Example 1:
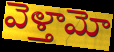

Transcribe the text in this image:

వెళ్తామో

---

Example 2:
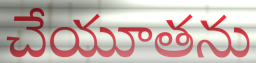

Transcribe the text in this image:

చేయూతను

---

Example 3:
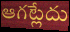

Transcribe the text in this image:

ఆగట్లేదు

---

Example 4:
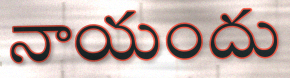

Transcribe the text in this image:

నాయందు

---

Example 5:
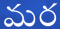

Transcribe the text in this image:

మర